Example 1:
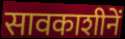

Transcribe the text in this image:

सावकाशीनें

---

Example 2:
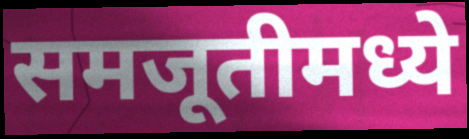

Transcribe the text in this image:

समजूतीमध्ये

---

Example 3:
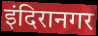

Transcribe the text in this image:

इंदिरानगर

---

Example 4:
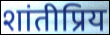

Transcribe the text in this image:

शांतीप्रिय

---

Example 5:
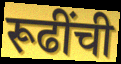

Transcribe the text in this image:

रूढींची